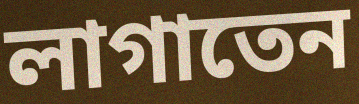
লাগাতেন